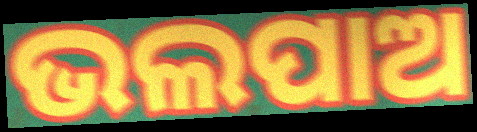
ଭଲପାଅ